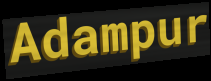
Adampur